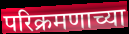
परिक्रमणाच्या